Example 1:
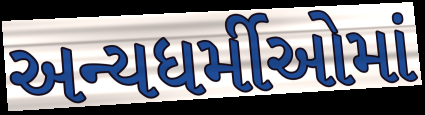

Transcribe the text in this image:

અન્યધર્મીઓમાં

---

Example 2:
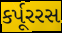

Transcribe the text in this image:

કર્પૂરરસ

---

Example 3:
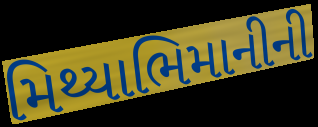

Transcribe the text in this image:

મિથ્યાભિમાનીની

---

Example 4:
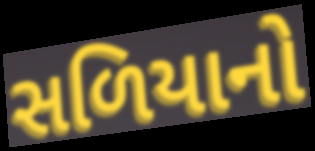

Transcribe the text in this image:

સળિયાનો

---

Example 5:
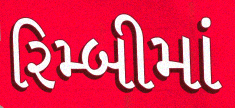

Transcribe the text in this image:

રિમ્બીમાં